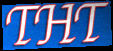
THT